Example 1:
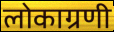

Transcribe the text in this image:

लोकाग्रणी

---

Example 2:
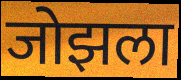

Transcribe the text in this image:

जोझला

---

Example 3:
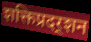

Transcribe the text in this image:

शक्तिप्रदर्शन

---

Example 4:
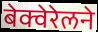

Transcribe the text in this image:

बेक्वेरेलने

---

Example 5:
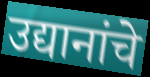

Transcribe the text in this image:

उद्यानांचे